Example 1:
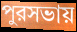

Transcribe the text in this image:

পুরসভায়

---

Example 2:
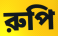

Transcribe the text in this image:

রুপি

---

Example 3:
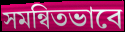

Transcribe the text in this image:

সমন্বিতভাবে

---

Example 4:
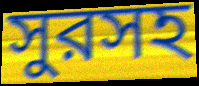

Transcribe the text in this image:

সুরসহ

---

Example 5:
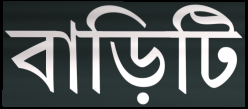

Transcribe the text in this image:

বাড়িটি